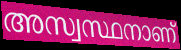
അസ്വസ്ഥനാണ്